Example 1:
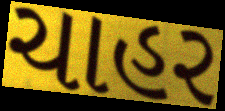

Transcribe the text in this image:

ચાહર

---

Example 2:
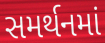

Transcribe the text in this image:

સમર્થનમાં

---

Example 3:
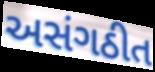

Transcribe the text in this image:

અસંગઠીત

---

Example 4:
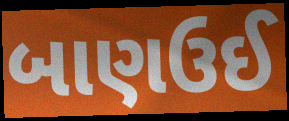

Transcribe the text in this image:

બાણઉઈ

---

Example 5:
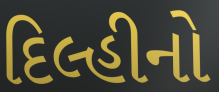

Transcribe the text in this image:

દિલ્હીનો